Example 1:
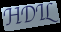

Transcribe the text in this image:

HDIL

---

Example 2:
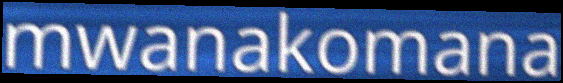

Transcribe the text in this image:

mwanakomana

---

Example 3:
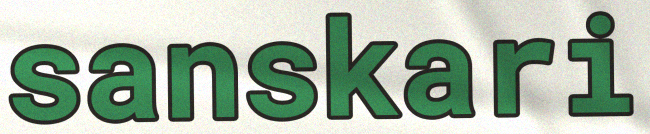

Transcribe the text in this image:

sanskari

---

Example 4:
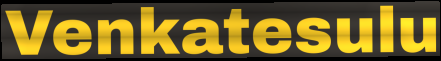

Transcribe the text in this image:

Venkatesulu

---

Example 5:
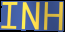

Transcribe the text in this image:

INH